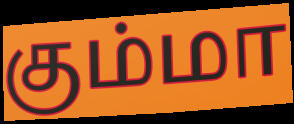
கும்மா